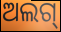
ଅଲଗ୍